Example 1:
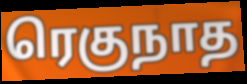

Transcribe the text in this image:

ரெகுநாத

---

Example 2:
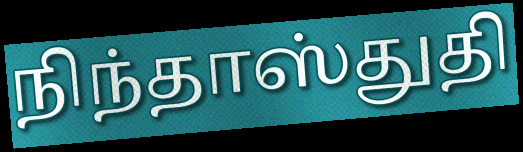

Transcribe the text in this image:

நிந்தாஸ்துதி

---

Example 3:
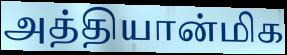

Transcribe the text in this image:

அத்தியான்மிக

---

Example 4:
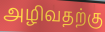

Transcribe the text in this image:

அழிவதற்கு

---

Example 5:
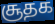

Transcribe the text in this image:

சூதக